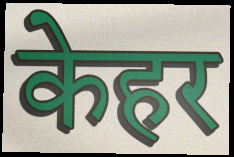
केहर